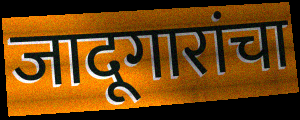
जादूगारांचा